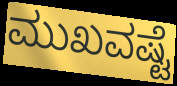
ಮುಖವಷ್ಟೆ